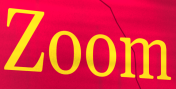
Zoom